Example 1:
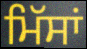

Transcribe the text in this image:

ਮਿੱਸਾਂ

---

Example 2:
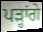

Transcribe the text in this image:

ਪੜ੍ਹਾਂਗੇ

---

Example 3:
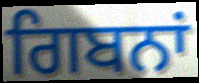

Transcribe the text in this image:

ਗਿਬਨਾਂ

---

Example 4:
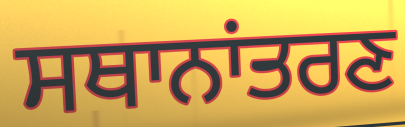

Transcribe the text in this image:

ਸਥਾਨਾਂਤਰਣ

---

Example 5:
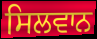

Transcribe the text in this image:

ਸਿਲਵਾਨ